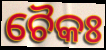
ଚୈକଃ